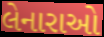
લેનારાઓ